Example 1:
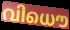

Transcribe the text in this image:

വിധൌ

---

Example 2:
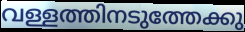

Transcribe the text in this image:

വള്ളത്തിനടുത്തേക്കു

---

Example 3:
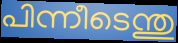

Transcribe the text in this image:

പിന്നീടെന്തു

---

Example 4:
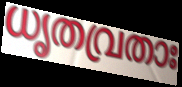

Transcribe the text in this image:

ധൃതവ്രതാഃ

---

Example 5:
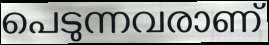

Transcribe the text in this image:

പെടുന്നവരാണ്